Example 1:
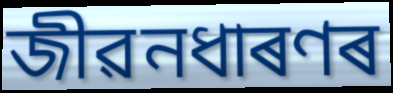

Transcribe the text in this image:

জীৱনধাৰণৰ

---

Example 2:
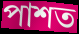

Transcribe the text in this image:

পাশত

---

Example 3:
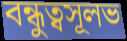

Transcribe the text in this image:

বন্ধুত্বসূলভ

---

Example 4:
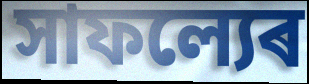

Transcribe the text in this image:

সাফল্যেৰ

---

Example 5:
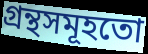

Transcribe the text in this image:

গ্ৰন্থসমূহতো